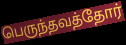
பெருந்தவத்தோர்